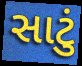
સાટું